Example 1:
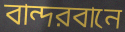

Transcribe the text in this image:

বান্দরবানে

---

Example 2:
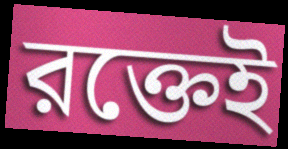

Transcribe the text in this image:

রক্তেই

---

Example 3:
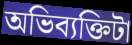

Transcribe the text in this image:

অভিব্যক্তিটা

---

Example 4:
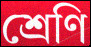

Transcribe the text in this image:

শ্রেণি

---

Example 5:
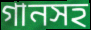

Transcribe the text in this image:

গানসহ